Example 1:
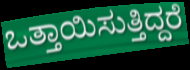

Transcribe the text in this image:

ಒತ್ತಾಯಿಸುತ್ತಿದ್ದರೆ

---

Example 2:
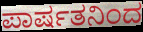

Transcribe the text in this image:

ಪಾರ್ಷತನಿಂದ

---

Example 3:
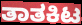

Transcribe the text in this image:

ತಾತಕಿಟ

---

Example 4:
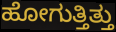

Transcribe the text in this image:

ಹೋಗುತ್ತಿತ್ತು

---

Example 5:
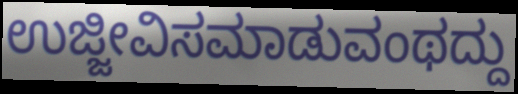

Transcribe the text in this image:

ಉಜ್ಜೀವಿಸಮಾಡುವಂಥದ್ದು